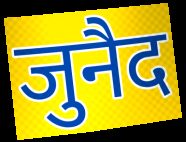
जुनैद